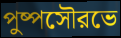
পুষ্পসৌরভে